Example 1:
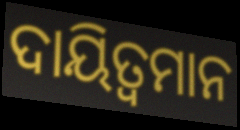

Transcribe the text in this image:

ଦାୟିତ୍ୱମାନ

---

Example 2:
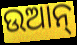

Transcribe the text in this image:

ଉଆନ୍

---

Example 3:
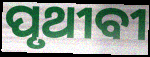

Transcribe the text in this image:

ପୃଥୀବୀ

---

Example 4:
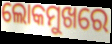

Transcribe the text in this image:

ଲୋକମୁଖରେ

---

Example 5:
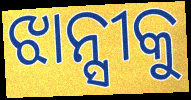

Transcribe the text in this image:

ଝାନ୍ସୀକୁ